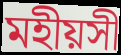
মহীয়সী